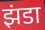
झंडा